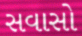
સવાસો